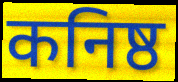
कनिष्ठ